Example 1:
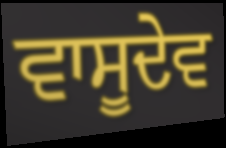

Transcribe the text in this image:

ਵਾਸੂਦੇਵ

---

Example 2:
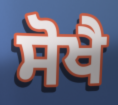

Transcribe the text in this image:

ਸੋਖੈ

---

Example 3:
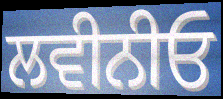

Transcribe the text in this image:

ਲਵੀਨੀਓ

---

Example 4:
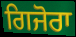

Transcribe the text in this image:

ਗਿਜੋਰਾ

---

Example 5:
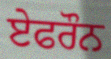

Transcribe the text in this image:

ਏਫਰੌਨ